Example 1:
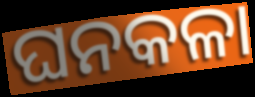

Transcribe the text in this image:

ଘନକଳା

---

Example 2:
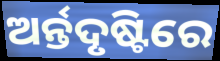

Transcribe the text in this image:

ଅର୍ନ୍ତଦୃଷ୍ଟିରେ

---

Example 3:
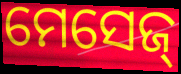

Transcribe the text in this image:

ମେସେଜ୍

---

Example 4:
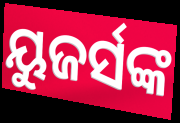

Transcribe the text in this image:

ୟୁଜର୍ସଙ୍କ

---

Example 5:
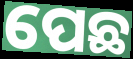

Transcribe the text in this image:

ପେଛ